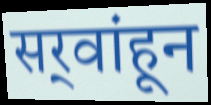
सर्वांहून